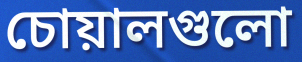
চোয়ালগুলো